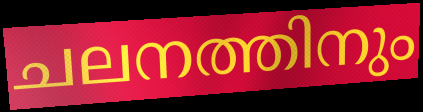
ചലനത്തിനും